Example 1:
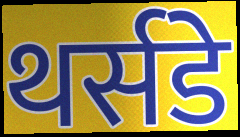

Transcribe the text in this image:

थर्सडे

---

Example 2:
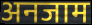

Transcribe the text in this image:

अनजाम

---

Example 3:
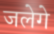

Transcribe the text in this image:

जलेगे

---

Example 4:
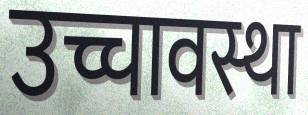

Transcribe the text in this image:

उच्चावस्था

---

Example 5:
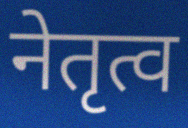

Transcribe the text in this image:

नेतृत्व